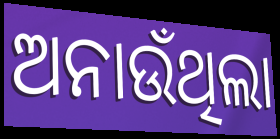
ଅନାଉଁଥିଲା